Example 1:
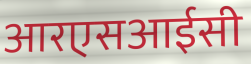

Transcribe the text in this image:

आरएसआईसी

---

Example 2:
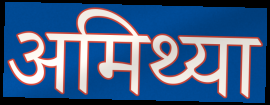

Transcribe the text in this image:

अमिथ्या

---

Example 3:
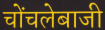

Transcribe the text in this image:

चोंचलेबाजी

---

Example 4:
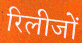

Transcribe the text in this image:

रिलीजों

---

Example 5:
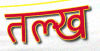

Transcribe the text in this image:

तल्ख